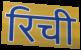
रिची